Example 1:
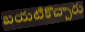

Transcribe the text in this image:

బయటికొచ్చారు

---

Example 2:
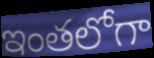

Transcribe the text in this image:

ఇంతలోగా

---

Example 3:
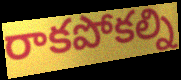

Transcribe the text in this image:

రాకపోకల్ని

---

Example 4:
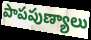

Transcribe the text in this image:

పాపపుణ్యాలు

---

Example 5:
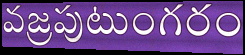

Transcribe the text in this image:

వజ్రపుటుంగరం